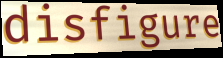
disfigure